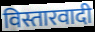
विस्तारवादी